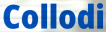
Collodi